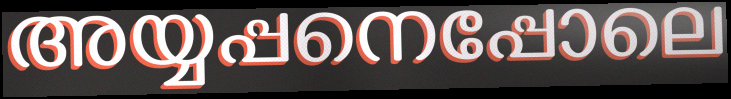
അയ്യപ്പനെപ്പോലെ